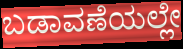
ಬಡಾವಣೆಯಲ್ಲೇ